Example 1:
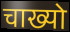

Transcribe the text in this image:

चाख्यो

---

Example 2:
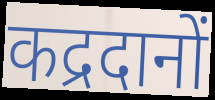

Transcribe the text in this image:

कद्रदानों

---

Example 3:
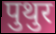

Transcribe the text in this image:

पुथुर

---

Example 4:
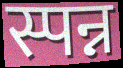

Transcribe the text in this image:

स्पन्न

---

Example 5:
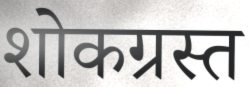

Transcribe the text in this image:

शोकग्रस्त